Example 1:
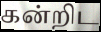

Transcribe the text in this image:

கன்றிட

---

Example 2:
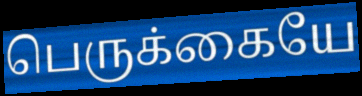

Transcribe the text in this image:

பெருக்கையே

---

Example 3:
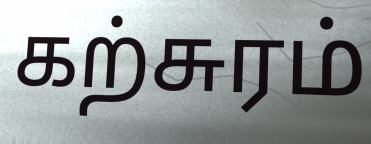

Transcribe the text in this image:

கற்சுரம்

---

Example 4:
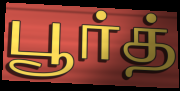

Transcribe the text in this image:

பூர்த்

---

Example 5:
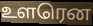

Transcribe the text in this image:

உளரென